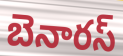
బెనారస్